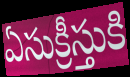
ఏసుక్రీస్తుకి